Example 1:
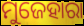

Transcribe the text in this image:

ମୁଜେହାରା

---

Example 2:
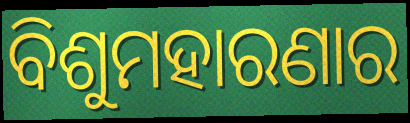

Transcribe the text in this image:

ବିଶୁମହାରଣାର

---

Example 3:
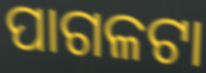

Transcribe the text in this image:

ପାଗଳଟା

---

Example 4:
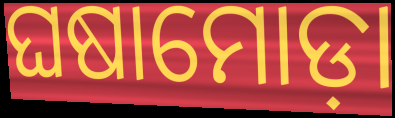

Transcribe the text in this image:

ଘଷାମୋଡ଼ା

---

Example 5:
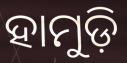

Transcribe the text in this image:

ହାମୁଡ଼ି